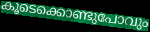
കൂടെക്കൊണ്ടുപോവും